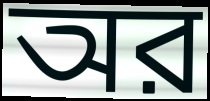
অর